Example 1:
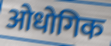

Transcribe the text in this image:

ओधोगिक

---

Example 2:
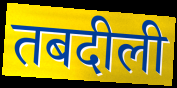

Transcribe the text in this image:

तबदीली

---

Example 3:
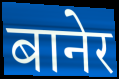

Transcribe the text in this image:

बानेर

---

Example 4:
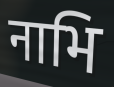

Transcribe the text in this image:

नाभि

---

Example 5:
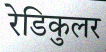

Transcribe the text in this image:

रेडिकुलर